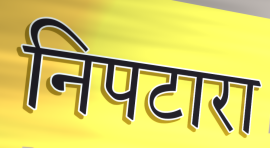
निपटारा